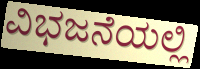
ವಿಭಜನೆಯಲ್ಲಿ